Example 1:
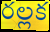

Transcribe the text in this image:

రల్లక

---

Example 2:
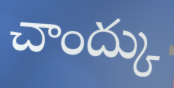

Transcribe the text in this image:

చాంద్కు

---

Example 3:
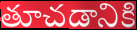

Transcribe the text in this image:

తూచడానికి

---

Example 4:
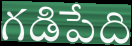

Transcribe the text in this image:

గడిపేది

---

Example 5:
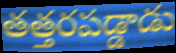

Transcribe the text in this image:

తత్తరపడ్డాడు